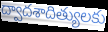
ద్వాదశాదిత్యులకు